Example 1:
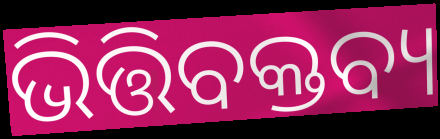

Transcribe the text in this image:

ଭିତ୍ତିବକ୍ତବ୍ୟ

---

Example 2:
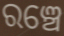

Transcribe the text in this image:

ରଞ୍ଚେ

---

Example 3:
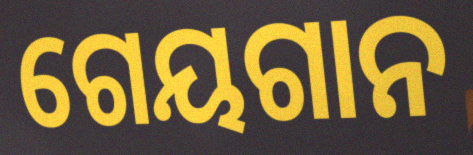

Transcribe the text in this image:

ଗେୟଗାନ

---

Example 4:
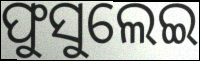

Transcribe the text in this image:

ଫୁସୁଲେଇ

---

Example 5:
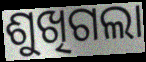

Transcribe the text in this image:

ଶୁଖିଗଲା